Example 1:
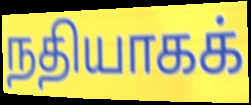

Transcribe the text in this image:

நதியாகக்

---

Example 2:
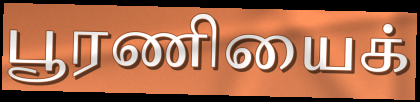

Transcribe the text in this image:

பூரணியைக்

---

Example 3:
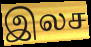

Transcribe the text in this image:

இலச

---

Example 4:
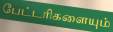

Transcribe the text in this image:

பேட்டரிகளையும்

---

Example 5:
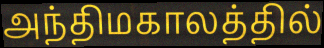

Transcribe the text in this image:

அந்திமகாலத்தில்